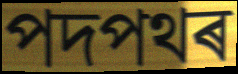
পদপথৰ